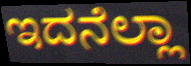
ಇದನೆಲ್ಲಾ